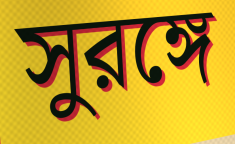
সুরঙ্গে